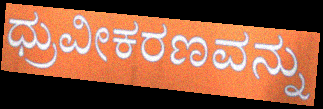
ಧ್ರುವೀಕರಣವನ್ನು